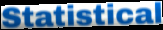
Statistical